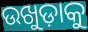
ଉଖୁଡ଼ାକୁ